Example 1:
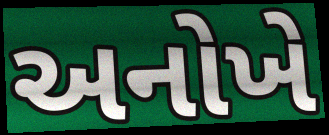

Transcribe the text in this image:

અનોખે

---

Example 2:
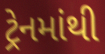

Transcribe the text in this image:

ટ્રેનમાંથી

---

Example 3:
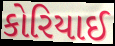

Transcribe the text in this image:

કોરિયાઈ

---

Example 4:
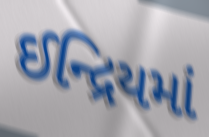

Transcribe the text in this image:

ઈન્દ્રિયમાં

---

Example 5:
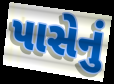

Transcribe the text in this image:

પાસેનું